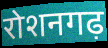
रोशनगढ़